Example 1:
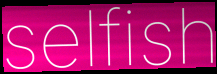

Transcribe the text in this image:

selfish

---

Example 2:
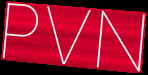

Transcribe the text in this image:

PVN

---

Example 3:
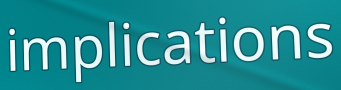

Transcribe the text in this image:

implications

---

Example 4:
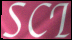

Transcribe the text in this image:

SCI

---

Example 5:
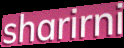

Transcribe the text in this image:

sharirni